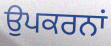
ਉਪਕਰਨਾਂ